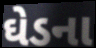
ઘેડના